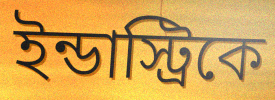
ইন্ডাস্ট্রিকে